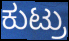
ಕುಟ್ರು